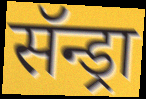
सॅन्ड्रा